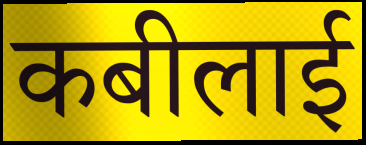
कबीलाई